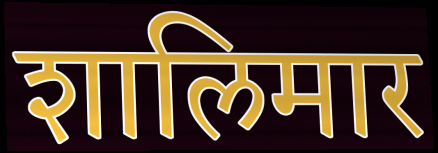
शालिमार